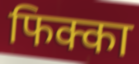
फिक्का